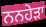
ਨਨਹੇੜਾ